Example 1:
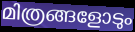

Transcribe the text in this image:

മിത്രങ്ങളോടും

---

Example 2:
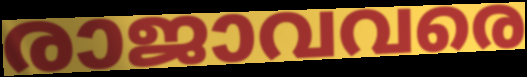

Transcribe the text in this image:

രാജാവവരെ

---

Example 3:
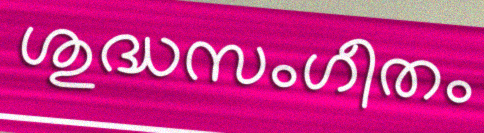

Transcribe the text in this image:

ശുദ്ധസംഗീതം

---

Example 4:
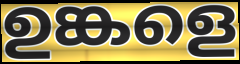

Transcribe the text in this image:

ഉങ്കളെ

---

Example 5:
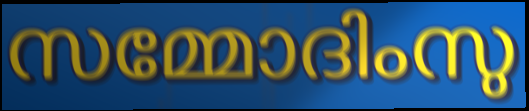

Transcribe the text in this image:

സമ്മോദിംസു